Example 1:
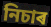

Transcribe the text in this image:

নিচাৰ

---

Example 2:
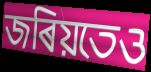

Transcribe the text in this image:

জৰিয়তেও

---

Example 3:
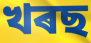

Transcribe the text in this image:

খৰছ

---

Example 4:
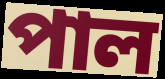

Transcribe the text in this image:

পাল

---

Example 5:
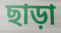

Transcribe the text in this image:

ছাড়া